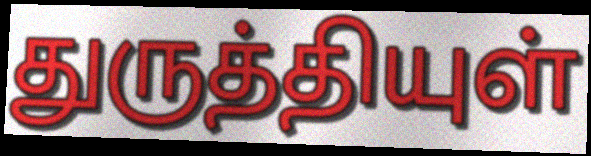
துருத்தியுள்